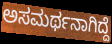
ಅಸಮರ್ಥನಾಗಿದ್ದೆ